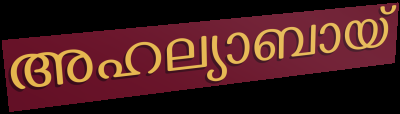
അഹല്യാബായ്